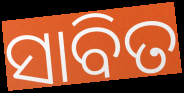
ସାବିତ